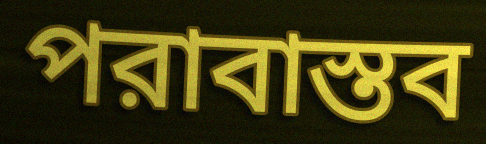
পরাবাস্তব